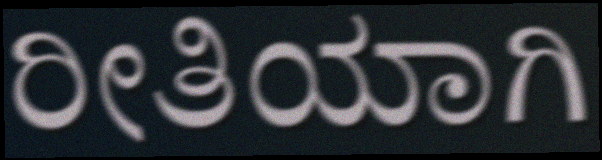
ರೀತಿಯಾಗಿ